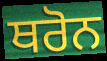
ਥਰੋਨ